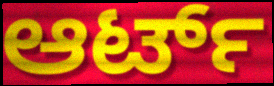
ಆರ್ಟ್